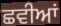
ਛਵੀਆਂ